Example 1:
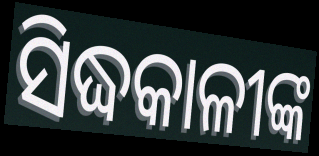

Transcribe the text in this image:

ସିଦ୍ଧକାଳୀଙ୍କ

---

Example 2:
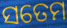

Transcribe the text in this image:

ସତେମ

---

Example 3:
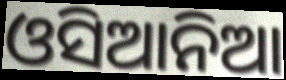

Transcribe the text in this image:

ଓସିଆନିଆ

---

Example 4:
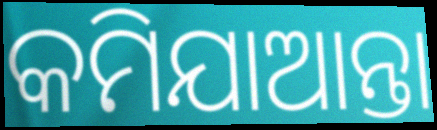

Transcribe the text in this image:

କମିଯାଆନ୍ତା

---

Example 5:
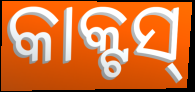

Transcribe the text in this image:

କାକ୍ଟସ୍